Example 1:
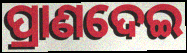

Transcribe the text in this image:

ପ୍ରାଣଦେଇ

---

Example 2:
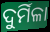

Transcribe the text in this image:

ଦୁର୍ମିଳା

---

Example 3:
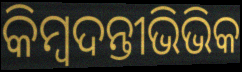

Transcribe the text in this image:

କିମ୍ବଦନ୍ତୀଭିଭିକ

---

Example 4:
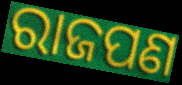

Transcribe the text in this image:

ରାଜପଣ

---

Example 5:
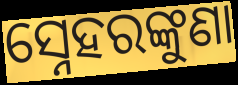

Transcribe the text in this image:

ସ୍ନେହରଙ୍କୁଣା